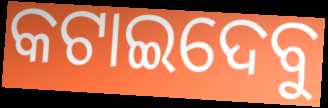
କଟାଇଦେବୁ